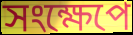
সংক্ষেপে